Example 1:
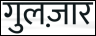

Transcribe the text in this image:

गुलज़ार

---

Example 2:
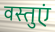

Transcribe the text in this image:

वस्तुएं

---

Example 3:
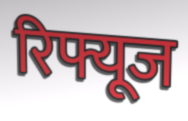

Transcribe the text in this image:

रिफ्यूज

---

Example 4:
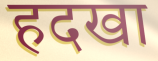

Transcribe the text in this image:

हदखा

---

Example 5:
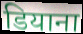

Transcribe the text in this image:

डियाना